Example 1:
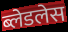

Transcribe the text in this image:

ब्लेडलेस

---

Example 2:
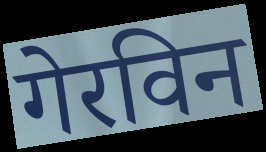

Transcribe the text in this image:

गेरविन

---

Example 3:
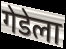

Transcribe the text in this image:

गेडेला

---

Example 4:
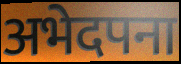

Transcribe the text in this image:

अभेदपना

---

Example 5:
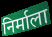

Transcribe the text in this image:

निर्माला